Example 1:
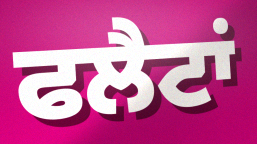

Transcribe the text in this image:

ਫਲੈਟਾਂ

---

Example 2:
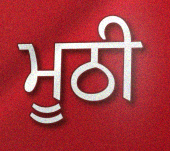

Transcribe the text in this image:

ਮੂਠੀ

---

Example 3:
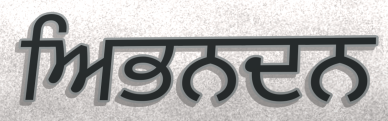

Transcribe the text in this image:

ਅਿਭਨਦਨ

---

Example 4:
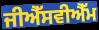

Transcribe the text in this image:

ਜੀਐੱਸਵੀਐੱਮ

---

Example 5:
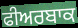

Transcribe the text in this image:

ਫੀਅਰਬਾਕ